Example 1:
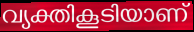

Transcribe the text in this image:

വ്യക്തികൂടിയാണ്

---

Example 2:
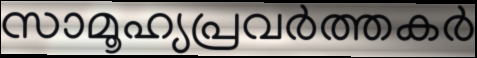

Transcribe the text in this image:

സാമൂഹ്യപ്രവർത്തകർ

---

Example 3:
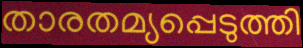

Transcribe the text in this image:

താരതമ്യപ്പെടുത്തി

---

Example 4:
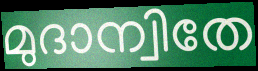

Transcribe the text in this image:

മുദാന്വിതേ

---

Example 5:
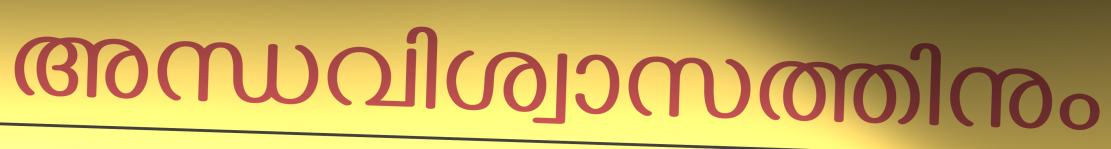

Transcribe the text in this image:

അന്ധവിശ്വാസത്തിനും